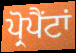
ਪ੍ਰੋਪੈਂਟਾਂ